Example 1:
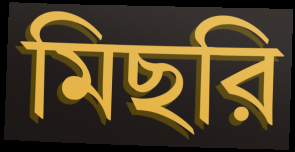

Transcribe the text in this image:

মিছরি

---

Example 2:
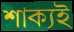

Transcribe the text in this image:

শাক্যই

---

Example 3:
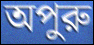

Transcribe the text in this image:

অপুরু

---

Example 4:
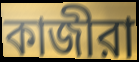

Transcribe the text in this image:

কাজীরা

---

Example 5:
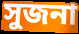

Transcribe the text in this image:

সুজনা